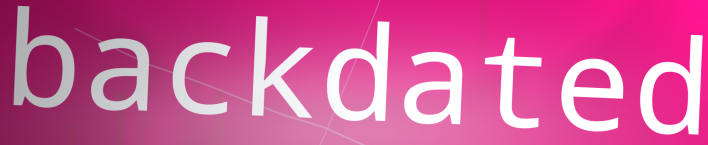
backdated